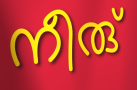
നീരു്